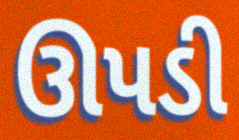
ઊપડી